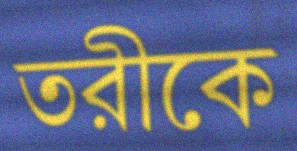
তরীকে